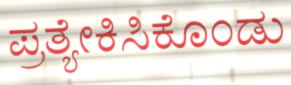
ಪ್ರತ್ಯೇಕಿಸಿಕೊಂಡು